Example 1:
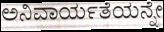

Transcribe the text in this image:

ಅನಿವಾರ್ಯತೆಯನ್ನೇ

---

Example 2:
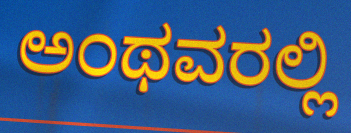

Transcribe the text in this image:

ಅಂಥವರಲ್ಲಿ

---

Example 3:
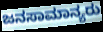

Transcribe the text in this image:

ಜನಸಾಮಾನ್ಯರು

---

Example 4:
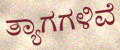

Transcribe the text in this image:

ತ್ಯಾಗಗಳಿವೆ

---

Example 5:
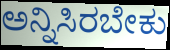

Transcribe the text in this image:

ಅನ್ನಿಸಿರಬೇಕು